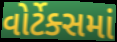
વોર્ટેક્સમાં